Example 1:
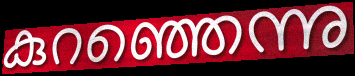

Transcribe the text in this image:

കുറഞ്ഞെന്നു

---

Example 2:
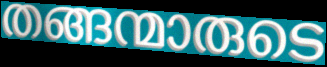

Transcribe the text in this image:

തങ്ങന്മാരുടെ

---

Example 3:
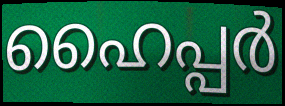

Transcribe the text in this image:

ഹൈപ്പർ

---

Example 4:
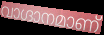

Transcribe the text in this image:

വാഗ്ദാനമാണ്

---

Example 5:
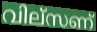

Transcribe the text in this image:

വില്സണ്